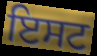
ਇਸਟ